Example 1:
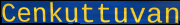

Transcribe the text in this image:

Cenkuttuvan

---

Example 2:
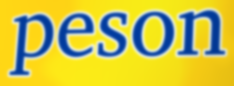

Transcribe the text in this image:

peson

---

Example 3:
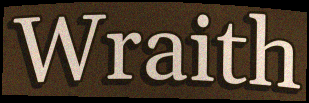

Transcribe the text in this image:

Wraith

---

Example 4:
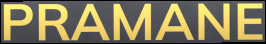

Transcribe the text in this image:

PRAMANE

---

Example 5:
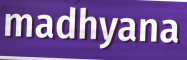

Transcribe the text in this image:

madhyana